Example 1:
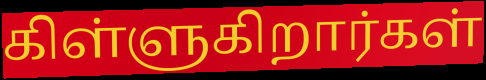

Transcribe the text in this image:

கிள்ளுகிறார்கள்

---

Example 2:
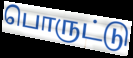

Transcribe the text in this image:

பொருட்டு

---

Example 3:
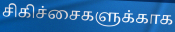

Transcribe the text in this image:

சிகிச்சைகளுக்காக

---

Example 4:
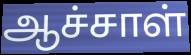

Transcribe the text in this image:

ஆச்சாள்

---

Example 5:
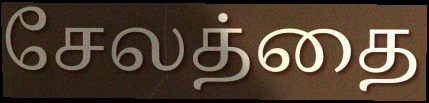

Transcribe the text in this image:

சேலத்தை